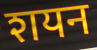
शयन